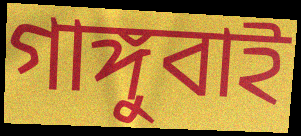
গাঙ্গুবাই